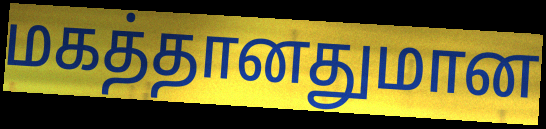
மகத்தானதுமான